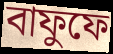
বাফুফে